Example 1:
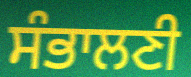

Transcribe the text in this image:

ਸੰਭਾਲਣੀ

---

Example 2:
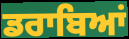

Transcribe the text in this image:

ਡਰਾਬਿਆਂ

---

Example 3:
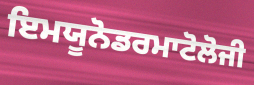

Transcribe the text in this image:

ਇਮਯੂਨੋਡਰਮਾਟੋਲੋਜੀ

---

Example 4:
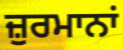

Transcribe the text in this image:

ਜ਼ੁਰਮਾਨਾਂ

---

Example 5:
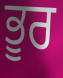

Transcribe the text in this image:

ਭੂਰ